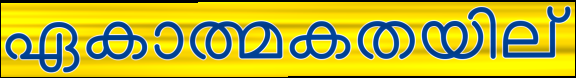
ഏകാത്മകതയില്